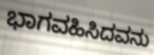
ಭಾಗವಹಿಸಿದವನು